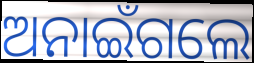
ଅନାଇଁଗଲେ